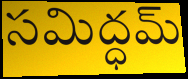
సమిద్ధమ్